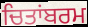
ਚਿਤਾਂਬਰਮ